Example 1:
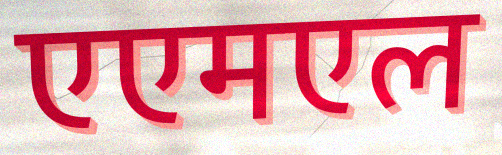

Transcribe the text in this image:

एएमएल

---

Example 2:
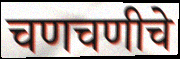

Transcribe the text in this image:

चणचणीचे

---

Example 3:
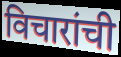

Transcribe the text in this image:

विचारांची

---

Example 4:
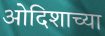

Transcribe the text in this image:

ओदिशाच्या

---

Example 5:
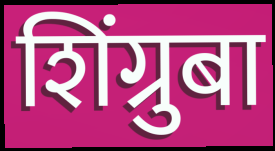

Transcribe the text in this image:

शिंग्रुबा